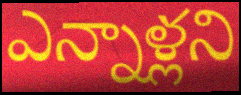
ఎన్నాళ్లని